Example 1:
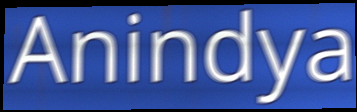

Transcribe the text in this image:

Anindya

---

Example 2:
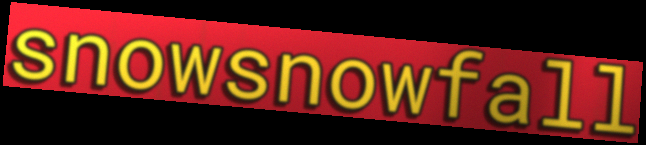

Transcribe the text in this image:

snowsnowfall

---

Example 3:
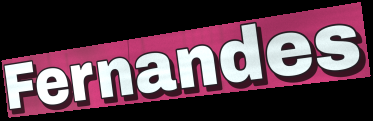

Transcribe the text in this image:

Fernandes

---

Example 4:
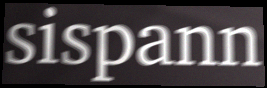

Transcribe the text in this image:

sispann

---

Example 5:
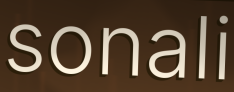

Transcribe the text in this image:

sonali